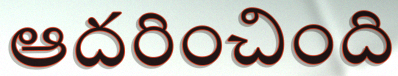
ఆదరించింది